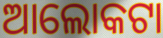
ଆଲୋକଟା